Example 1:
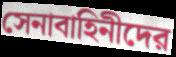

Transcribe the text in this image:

সেনাবাহিনীদের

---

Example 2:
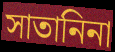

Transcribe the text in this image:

সাতানিনা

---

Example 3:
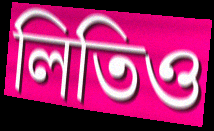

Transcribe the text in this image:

লিতিও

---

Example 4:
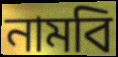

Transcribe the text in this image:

নামবি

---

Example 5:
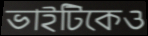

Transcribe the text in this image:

ভাইটিকেও